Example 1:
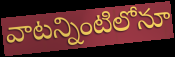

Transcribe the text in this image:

వాటన్నింటిలోనూ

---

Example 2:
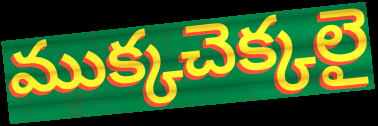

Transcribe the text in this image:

ముక్కచెక్కలై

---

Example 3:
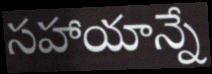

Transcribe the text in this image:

సహాయాన్నే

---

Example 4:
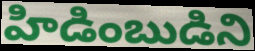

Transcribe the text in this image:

హిడింబుడిని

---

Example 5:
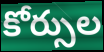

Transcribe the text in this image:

కోర్సుల